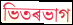
ভিতৰভাগ